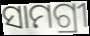
ସାମଗ୍ରୀ